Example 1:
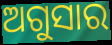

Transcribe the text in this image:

ଅଗୁସାର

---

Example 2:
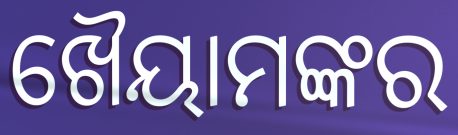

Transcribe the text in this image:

ଖୈୟାମଙ୍କର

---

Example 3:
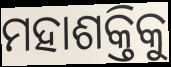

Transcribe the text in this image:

ମହାଶକ୍ତିକୁ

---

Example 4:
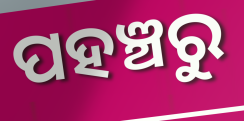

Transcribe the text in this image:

ପହଞ୍ଚରୁ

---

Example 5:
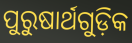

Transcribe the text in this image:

ପୁରୁଷାର୍ଥଗୁଡ଼ିକ